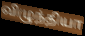
விழுந்தியா